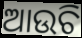
ଆଉଚି